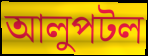
আলুপটল